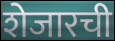
शेजारची